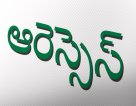
ఆరెస్సెస్